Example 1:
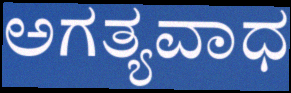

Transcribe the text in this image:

ಅಗತ್ಯವಾಧ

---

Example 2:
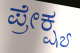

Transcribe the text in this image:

ಪ್ರೇಕ್ಷ್ಯ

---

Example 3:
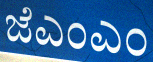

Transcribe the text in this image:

ಜೆಎಂಎಂ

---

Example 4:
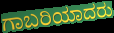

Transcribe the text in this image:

ಗಾಬರಿಯಾದರು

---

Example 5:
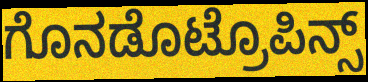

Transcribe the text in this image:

ಗೊನಡೊಟ್ರೊಪಿನ್ಸ್